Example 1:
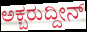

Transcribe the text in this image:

ಅಕ್ಬರುದ್ದೀನ್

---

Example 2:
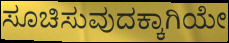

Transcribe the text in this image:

ಸೂಚಿಸುವುದಕ್ಕಾಗಿಯೇ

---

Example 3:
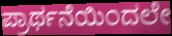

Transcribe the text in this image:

ಪ್ರಾರ್ಥನೆಯಿಂದಲೇ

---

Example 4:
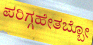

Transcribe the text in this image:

ಪರಿಗ್ಗಹೇತಬ್ಬೋ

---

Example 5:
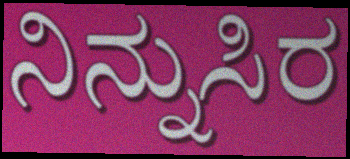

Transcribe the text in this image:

ನಿನ್ನುಸಿರ